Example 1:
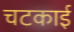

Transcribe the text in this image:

चटकाई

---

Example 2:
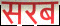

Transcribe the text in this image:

सरब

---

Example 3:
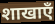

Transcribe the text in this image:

शाखाएँ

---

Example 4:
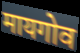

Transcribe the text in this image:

मायगोव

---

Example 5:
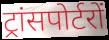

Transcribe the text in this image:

ट्रांसपोर्टरों